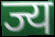
ज्य